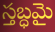
స్తబ్ధమై